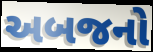
અબજનો